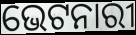
ଭେଟନାରୀ